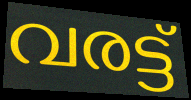
വരട്ട്